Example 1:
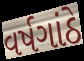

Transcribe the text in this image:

વર્ષગાંઠે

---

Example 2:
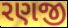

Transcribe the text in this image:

રણજી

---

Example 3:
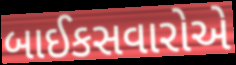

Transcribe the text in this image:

બાઈકસવારોએ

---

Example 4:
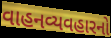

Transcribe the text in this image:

વાહનવ્યવહારનો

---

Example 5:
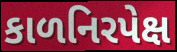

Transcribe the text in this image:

કાળનિરપેક્ષ